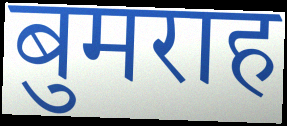
बुमराह